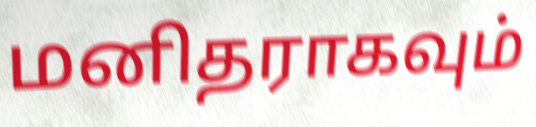
மனிதராகவும்